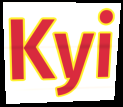
Kyi